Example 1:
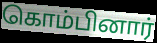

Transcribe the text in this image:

கொம்பினார்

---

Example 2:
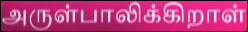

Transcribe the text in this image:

அருள்பாலிக்கிறாள்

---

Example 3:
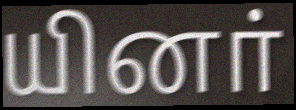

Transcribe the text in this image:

யினர்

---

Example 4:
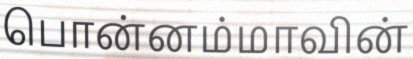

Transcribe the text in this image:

பொன்னம்மாவின்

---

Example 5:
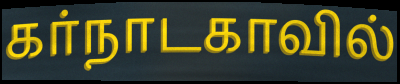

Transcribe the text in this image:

கர்நாடகாவில்